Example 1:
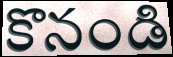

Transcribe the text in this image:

కొనండి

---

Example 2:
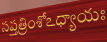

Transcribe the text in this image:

సప్తత్రింశోఽధ్యాయః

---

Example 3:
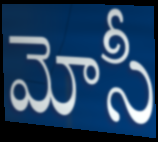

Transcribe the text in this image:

మోసీ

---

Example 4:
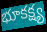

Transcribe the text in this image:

భూకక్ష్య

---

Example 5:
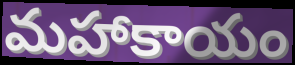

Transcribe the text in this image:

మహాకాయం